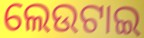
ଲେଉଟାଇ